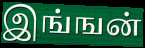
இங்ஙன்